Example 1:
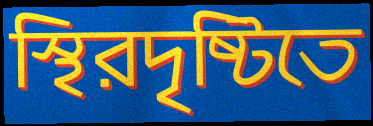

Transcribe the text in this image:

স্থিরদৃষ্টিতে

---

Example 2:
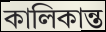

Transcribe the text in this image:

কালিকান্ত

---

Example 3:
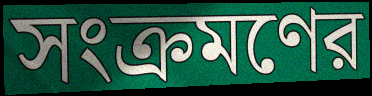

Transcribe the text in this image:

সংক্রমণের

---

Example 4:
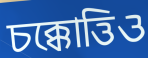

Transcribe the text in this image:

চক্কোত্তিও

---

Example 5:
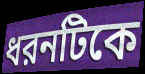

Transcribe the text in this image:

ধরনটিকে